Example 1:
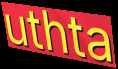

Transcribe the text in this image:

uthta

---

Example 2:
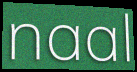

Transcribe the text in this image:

naal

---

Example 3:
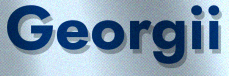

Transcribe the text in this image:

Georgii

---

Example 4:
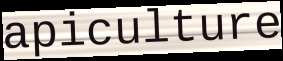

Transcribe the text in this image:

apiculture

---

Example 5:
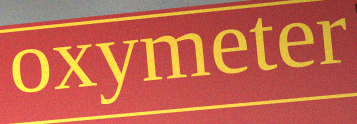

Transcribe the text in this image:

oxymeter